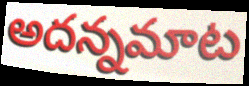
అదన్నమాట